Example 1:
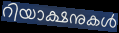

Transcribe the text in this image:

റിയാക്ഷനുകൾ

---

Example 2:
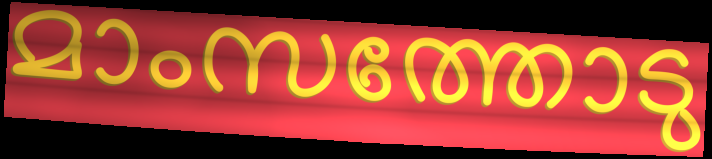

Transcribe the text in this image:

മാംസത്തോടു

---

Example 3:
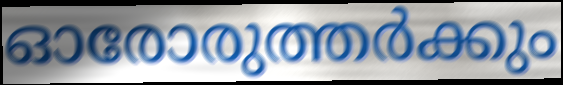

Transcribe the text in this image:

ഓരോരുത്തർക്കും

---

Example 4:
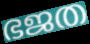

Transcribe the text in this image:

ഭജത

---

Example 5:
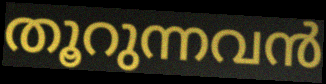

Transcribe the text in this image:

തൂറുന്നവൻ